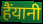
हैंयानी